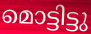
മൊട്ടിട്ടു